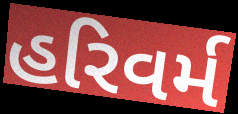
હરિવર્મ